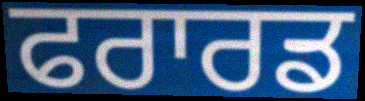
ਫਰਾਰਡ